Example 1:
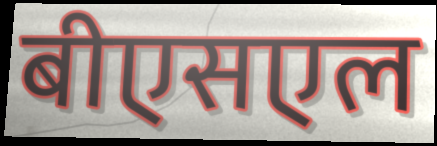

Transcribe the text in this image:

बीएसएल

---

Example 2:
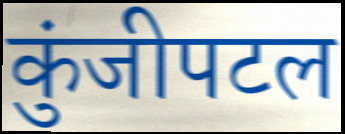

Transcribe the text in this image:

कुंजीपटल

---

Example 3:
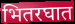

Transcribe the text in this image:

भितरघात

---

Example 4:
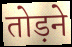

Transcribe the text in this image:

तोड़ने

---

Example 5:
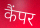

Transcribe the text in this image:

कैंपर